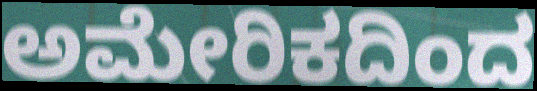
ಅಮೇರಿಕದಿಂದ